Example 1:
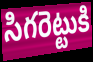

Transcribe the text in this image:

సిగరెట్టుకి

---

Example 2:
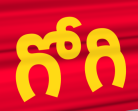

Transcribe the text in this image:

గోగి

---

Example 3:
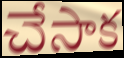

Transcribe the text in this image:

చేసాక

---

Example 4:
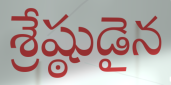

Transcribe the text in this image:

శ్రేష్ఠుడైన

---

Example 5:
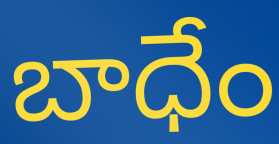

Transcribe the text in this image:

బాధేం